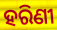
ହରିଣୀ